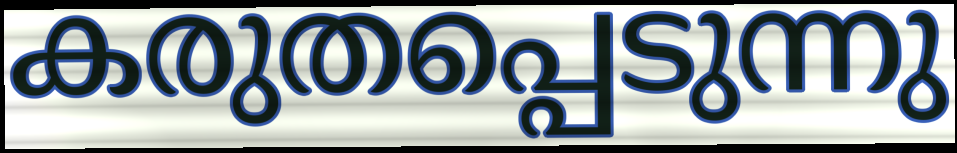
കരുതപ്പെടുന്നു